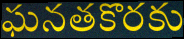
ఘనతకొరకు